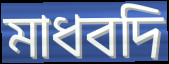
মাধবদি